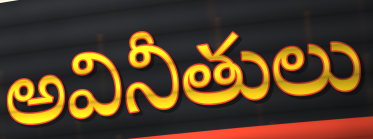
అవినీతులు